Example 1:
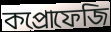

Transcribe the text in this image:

কপ্রোফেজি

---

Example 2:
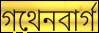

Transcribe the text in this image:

গথেনবার্গ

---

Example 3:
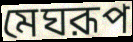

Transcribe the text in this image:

মেঘরূপ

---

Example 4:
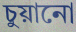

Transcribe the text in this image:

চুয়ানো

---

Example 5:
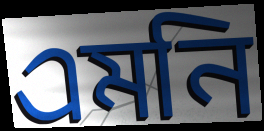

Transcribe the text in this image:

এমনি